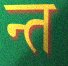
न्त